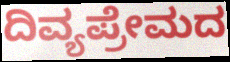
ದಿವ್ಯಪ್ರೇಮದ